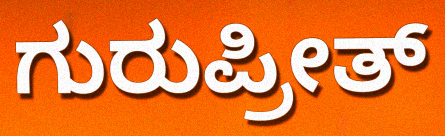
ಗುರುಪ್ರೀತ್